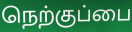
நெற்குப்பை